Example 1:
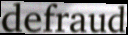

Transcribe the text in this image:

defraud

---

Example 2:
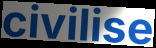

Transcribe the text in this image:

civilise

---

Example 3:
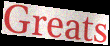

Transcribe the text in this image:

Greats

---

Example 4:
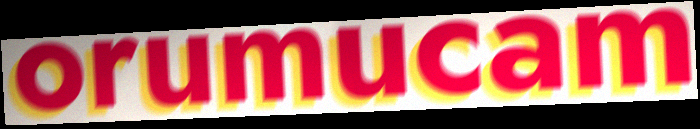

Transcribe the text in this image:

orumucam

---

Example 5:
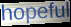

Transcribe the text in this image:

hopeful